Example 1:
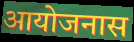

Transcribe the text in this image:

आयोजनास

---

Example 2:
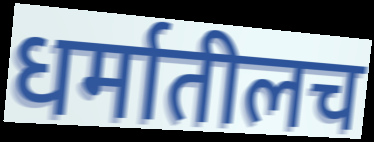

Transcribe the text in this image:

धर्मातीलच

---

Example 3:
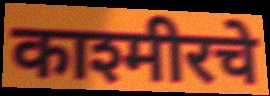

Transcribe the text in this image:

काश्मीरचे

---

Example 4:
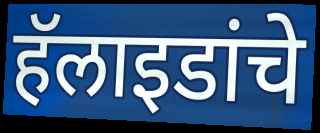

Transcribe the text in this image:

हॅलाइडांचे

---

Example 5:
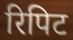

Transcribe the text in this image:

रिपिट